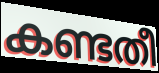
കണ്ടതീ